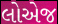
લોએજ